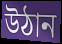
উঠান